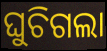
ଘୁଚିଗଲା